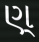
ણ્